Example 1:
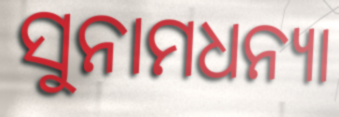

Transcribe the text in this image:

ସୁନାମଧନ୍ୟା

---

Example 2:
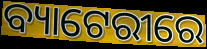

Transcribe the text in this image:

ବ୍ୟାଟେରୀରେ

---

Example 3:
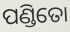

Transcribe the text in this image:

ପଣ୍ଡିତୋ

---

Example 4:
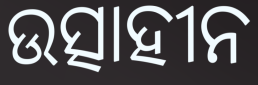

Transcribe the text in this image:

ଉତ୍ସାହୀନ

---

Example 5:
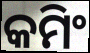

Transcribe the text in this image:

କମିଂ